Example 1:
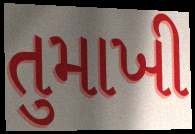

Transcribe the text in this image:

તુમાખી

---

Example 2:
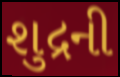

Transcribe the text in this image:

શુદ્રની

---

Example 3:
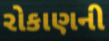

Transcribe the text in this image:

રોકાણની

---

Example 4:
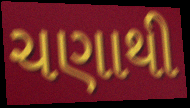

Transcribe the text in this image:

ચણાથી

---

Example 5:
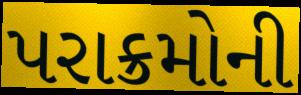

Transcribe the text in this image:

પરાક્રમોની